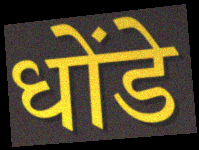
धोंडे